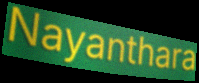
Nayanthara